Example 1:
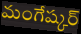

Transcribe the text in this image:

మంగేష్కర్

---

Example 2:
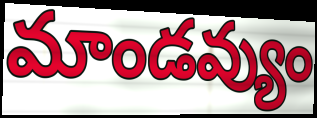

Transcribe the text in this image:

మాండవ్యుం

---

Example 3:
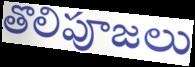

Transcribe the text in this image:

తొలిపూజలు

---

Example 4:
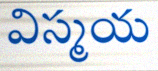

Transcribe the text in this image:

విస్మయ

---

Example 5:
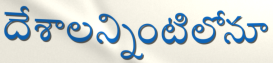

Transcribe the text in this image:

దేశాలన్నింటిలోనూ